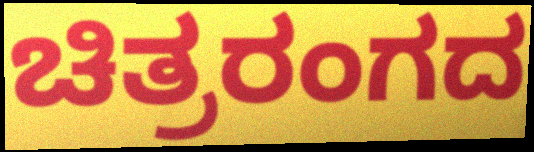
ಚಿತ್ರರಂಗದ